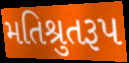
મતિશ્રુતરૂપ